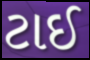
ટાઈ